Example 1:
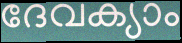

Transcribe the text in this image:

ദേവക്യാം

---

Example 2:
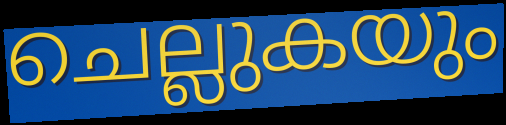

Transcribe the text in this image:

ചെല്ലുകയും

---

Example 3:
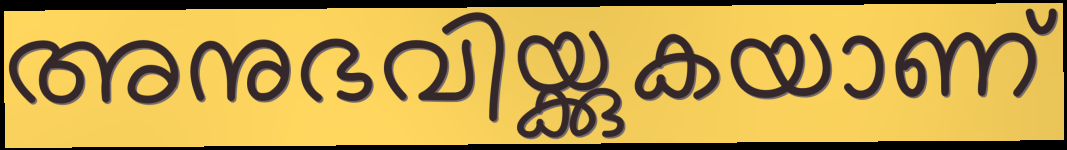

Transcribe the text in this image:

അനുഭവിയ്ക്കുകയാണ്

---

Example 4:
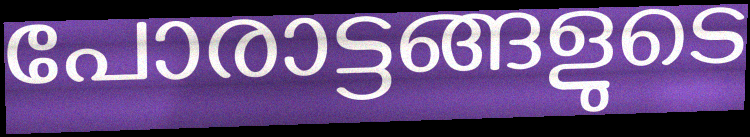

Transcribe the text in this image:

പോരാട്ടങ്ങളുടെ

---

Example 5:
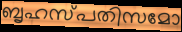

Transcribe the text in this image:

ബൃഹസ്പതിസമോ